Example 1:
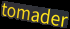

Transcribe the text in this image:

tomader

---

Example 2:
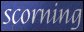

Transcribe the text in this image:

scorning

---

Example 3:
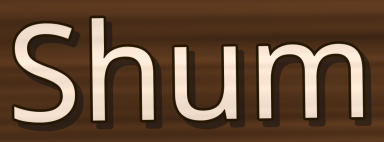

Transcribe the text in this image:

Shum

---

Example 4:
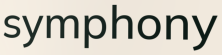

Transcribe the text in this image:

symphony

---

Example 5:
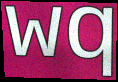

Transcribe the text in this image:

wq